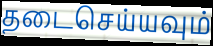
தடைசெய்யவும்